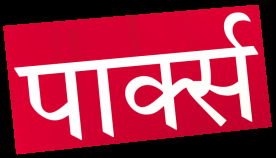
पार्क्स